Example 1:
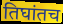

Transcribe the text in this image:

तिघांतच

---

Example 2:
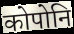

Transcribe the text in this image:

कोपोनि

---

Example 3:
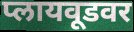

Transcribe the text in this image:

प्लायवूडवर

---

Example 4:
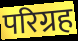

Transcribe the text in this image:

परिग्रह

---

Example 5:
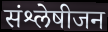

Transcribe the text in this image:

संश्लेषीजन